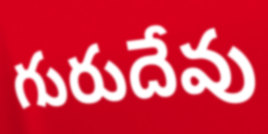
గురుదేవు